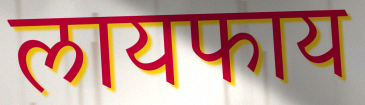
लायफाय